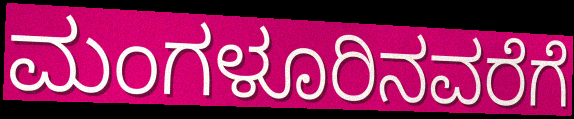
ಮಂಗಳೂರಿನವರೆಗೆ